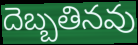
దెబ్బతినవు